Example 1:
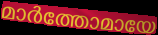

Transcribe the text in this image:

മാർത്തോമായേ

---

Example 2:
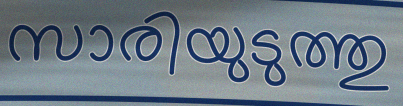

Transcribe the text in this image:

സാരിയുടുത്തു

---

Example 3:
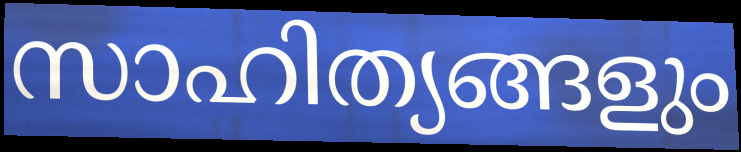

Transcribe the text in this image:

സാഹിത്യങ്ങളും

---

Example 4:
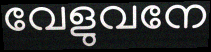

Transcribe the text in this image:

വേളുവനേ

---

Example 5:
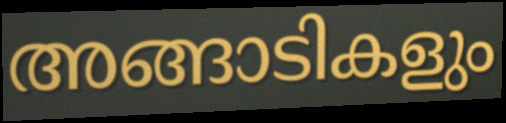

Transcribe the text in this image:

അങ്ങാടികളും